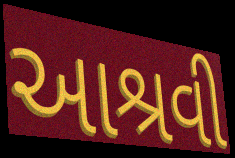
આશ્રવી